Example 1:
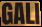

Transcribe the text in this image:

GALI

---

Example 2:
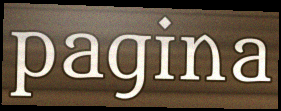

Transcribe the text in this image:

pagina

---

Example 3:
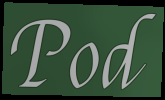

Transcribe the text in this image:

Pod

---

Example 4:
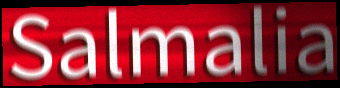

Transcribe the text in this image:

Salmalia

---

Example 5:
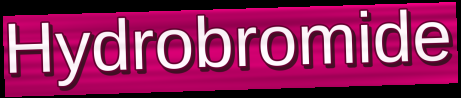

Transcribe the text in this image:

Hydrobromide